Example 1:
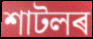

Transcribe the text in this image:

শাটলৰ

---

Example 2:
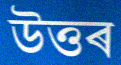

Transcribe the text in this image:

উত্তৰ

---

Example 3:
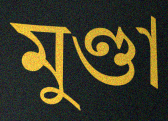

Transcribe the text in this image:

মুণ্ডা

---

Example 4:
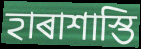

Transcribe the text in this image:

হাৰাশাস্তি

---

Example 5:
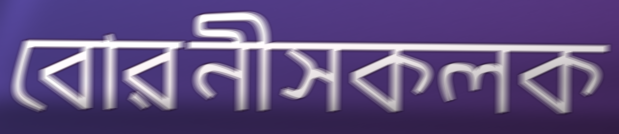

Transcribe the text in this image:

বোৱনীসকলক